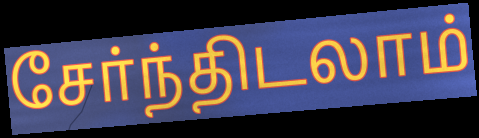
சேர்ந்திடலாம்